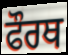
ਫੌਰਥ